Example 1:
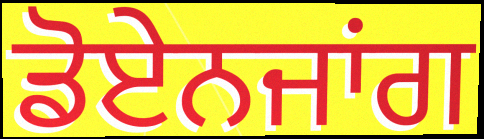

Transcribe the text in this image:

ਡੋਏਨਜਾਂਗ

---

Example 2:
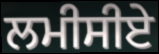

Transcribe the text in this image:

ਲਮੀਸੀਏ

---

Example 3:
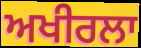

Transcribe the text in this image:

ਅਖੀਰਲਾ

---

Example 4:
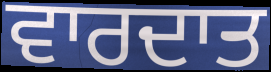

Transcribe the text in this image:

ਵਾਰਦਾਤ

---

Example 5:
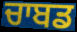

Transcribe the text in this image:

ਚਾਬਡ